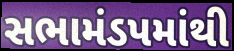
સભામંડપમાંથી